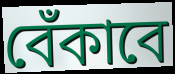
বেঁকাবে